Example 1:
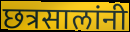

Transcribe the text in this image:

छत्रसालांनी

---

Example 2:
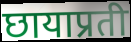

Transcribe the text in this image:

छायाप्रती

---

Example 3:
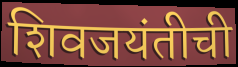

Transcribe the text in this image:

शिवजयंतीची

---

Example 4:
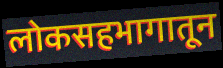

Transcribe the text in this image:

लोकसहभागातून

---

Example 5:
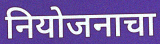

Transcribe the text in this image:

नियोजनाचा